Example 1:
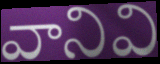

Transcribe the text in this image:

వానివి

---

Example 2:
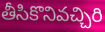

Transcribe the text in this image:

తీసికొనివచ్చిరి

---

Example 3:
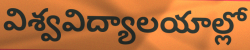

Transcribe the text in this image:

విశ్వవిద్యాలయాల్లో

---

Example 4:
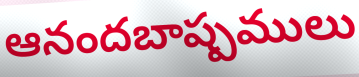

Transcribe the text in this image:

ఆనందబాష్పములు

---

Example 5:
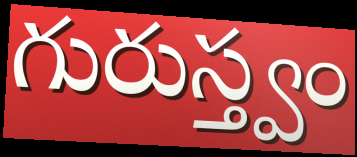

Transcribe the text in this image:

గురుస్త్వం